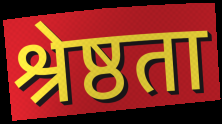
श्रेष्ठता